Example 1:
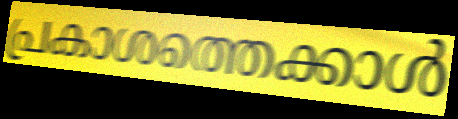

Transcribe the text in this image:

പ്രകാശത്തെക്കാൾ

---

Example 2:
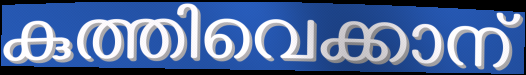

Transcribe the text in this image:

കുത്തിവെക്കാന്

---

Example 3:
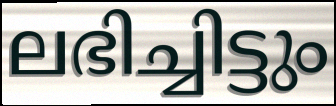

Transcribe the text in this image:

ലഭിച്ചിട്ടും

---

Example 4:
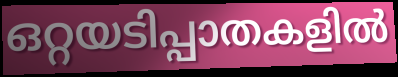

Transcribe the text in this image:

ഒറ്റയടിപ്പാതകളിൽ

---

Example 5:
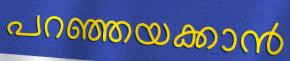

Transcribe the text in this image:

പറഞ്ഞയക്കാൻ